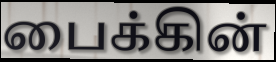
பைக்கின்